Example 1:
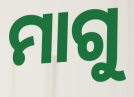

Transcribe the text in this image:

ମାଗୁ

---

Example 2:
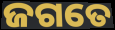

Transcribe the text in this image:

ଜଗତେ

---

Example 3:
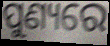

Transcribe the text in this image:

ପୁଣ୍ୟରେ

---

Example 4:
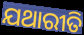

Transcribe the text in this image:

ଯଥାରୀତି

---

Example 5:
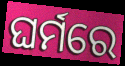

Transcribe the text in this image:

ଘର୍ମରେ